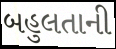
બહુલતાની